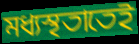
মধ্যস্থতাতেই